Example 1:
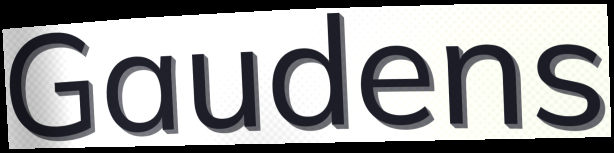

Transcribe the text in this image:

Gaudens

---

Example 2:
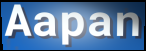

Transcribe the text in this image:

Aapan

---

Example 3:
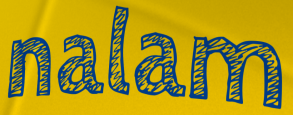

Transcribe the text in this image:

nalam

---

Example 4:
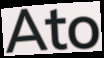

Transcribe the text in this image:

Ato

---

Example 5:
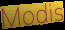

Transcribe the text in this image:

Modis